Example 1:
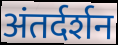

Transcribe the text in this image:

अंतर्दर्शन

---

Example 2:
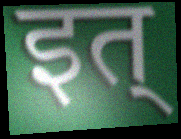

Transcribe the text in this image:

इत्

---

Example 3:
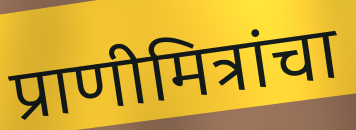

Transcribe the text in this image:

प्राणीमित्रांचा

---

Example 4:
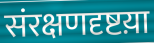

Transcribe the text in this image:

संरक्षणदृष्टय़ा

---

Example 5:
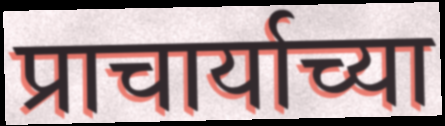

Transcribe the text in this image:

प्राचार्याच्या